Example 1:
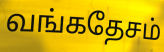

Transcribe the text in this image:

வங்கதேசம்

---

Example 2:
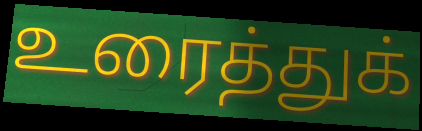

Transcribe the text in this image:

உரைத்துக்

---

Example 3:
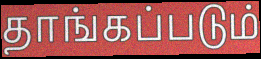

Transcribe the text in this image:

தாங்கப்படும்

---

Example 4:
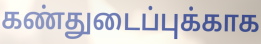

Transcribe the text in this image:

கண்துடைப்புக்காக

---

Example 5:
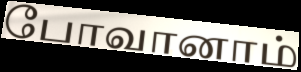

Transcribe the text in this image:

போவானாம்